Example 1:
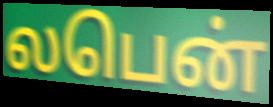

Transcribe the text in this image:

லபென்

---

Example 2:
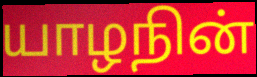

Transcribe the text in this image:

யாழநின்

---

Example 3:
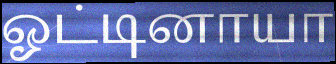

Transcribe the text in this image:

ஓட்டினாயா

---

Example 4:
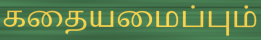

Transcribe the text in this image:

கதையமைப்பும்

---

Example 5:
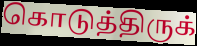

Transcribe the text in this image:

கொடுத்திருக்